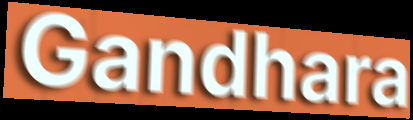
Gandhara